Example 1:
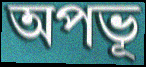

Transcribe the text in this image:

অপভূ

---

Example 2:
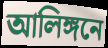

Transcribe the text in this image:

আলিঙ্গনে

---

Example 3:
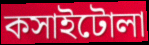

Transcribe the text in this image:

কসাইটোলা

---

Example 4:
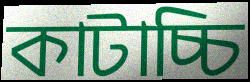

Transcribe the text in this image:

কাটাচ্চি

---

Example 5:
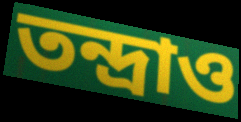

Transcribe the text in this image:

তন্দ্রাও